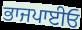
ਭਾਜਪਾਈਓ